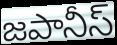
జపానీస్